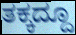
ತಕ್ಕದ್ದೂ